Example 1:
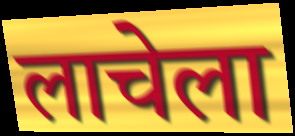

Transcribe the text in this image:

लाचेला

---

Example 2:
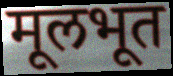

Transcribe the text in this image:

मूलभूत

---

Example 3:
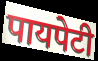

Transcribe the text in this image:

पायपेटी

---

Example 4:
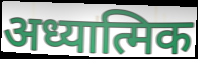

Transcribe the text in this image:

अध्यात्मिक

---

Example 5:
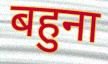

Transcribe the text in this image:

बहुना